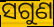
ସଗୁଣ